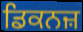
ਡਿਕਨਜ਼